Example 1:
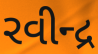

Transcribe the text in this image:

રવીન્દ્ર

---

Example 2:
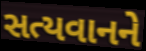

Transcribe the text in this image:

સત્યવાનને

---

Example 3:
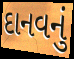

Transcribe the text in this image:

દાનવનું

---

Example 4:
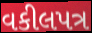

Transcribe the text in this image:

વકીલપત્ર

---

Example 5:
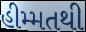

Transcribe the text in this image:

હીમ્મતથી